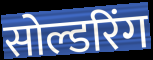
सोल्डरिंग